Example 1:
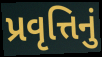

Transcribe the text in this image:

પ્રવૃત્તિનું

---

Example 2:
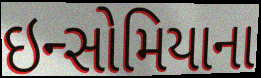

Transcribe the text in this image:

ઇન્સોમિયાના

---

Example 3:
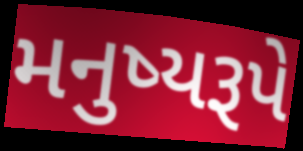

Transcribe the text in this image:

મનુષ્યરૂપે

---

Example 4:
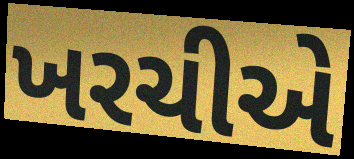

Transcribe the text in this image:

ખરચીએ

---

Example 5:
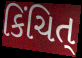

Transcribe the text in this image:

કિંચિત્